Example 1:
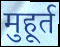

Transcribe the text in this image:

मुहूर्त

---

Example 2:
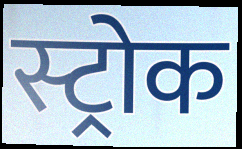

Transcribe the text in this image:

स्‍ट्रोक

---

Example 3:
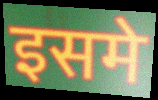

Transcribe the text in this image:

इसमे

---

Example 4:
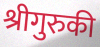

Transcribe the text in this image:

श्रीगुरुकी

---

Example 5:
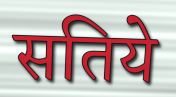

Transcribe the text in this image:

सतिये